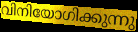
വിനിയോഗിക്കുന്നു